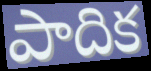
పాదిక